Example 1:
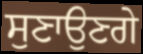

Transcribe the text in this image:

ਸੁਣਾਉਣਗੇ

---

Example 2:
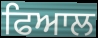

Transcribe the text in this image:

ਫਿਆਲ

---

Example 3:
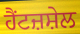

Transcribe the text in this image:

ਹੈਂਟਜ਼ਸ਼ੇਲ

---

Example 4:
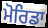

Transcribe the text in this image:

ਮੋਰਿਡਾ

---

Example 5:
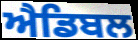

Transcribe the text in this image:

ਐਡਿਬਲ